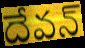
దేవన్